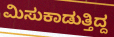
ಮಿಸುಕಾಡುತ್ತಿದ್ದ